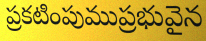
ప్రకటింపుముప్రభువైన